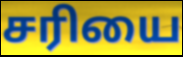
சரியை